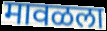
मावळला